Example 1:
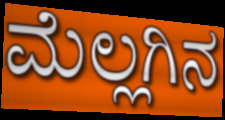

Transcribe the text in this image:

ಮೆಲ್ಲಗಿನ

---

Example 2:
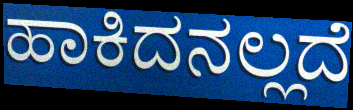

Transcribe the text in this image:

ಹಾಕಿದನಲ್ಲದೆ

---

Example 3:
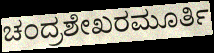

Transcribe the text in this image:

ಚಂದ್ರಶೇಖರಮೂರ್ತಿ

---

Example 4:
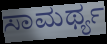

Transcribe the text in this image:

ಸಾಮರ್ಥ್ಯ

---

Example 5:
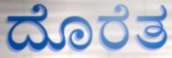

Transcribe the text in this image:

ದೊರೆತ